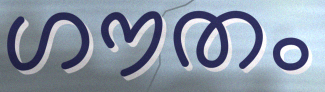
ഗൗതം